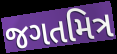
જગતમિત્ર